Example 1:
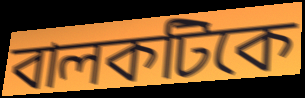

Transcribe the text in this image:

বালকটিকে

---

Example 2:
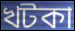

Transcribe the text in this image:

খটকা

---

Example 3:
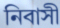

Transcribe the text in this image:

নিবাসী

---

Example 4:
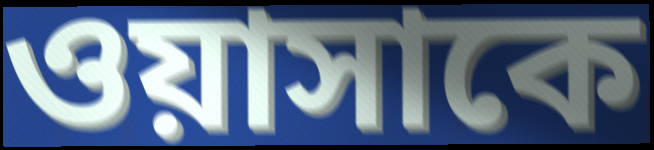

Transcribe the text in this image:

ওয়াসাকে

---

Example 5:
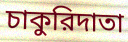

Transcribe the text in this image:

চাকুরিদাতা